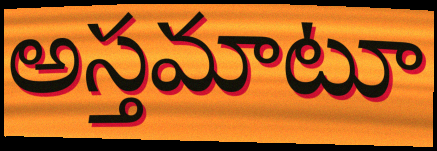
అస్తమాటూ